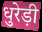
धुरेड़ी